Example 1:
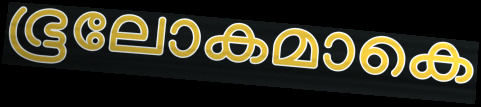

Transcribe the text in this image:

ഭൂലോകമാകെ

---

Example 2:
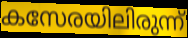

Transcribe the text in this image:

കസേരയിലിരുന്ന്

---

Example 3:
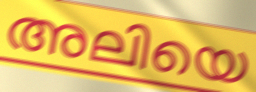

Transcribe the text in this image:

അലിയെ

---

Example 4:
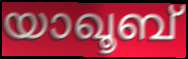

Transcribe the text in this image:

യാഖൂബ്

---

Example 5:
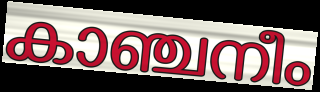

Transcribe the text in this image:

കാഞ്ചനീം